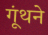
गूंथने